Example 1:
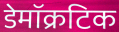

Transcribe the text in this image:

डेमॉक्रटिक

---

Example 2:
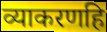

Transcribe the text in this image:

व्याकरणहि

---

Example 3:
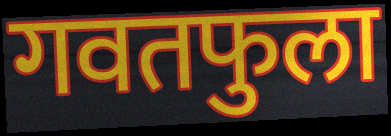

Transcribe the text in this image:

गवतफुला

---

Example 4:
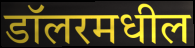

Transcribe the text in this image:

डॉलरमधील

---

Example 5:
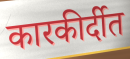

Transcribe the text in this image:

कारकीर्दीत